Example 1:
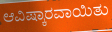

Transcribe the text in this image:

ಆವಿಷ್ಕಾರವಾಯಿತು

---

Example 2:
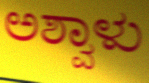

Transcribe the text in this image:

ಅಶ್ವಾಳು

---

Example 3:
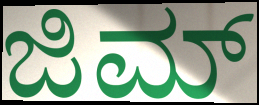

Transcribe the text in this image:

ಜಿಮ್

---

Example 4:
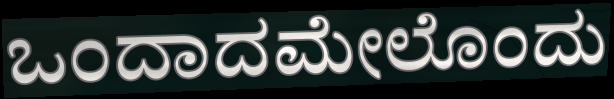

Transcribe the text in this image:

ಒಂದಾದಮೇಲೊಂದು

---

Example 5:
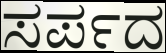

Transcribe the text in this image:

ಸರ್ಪದ